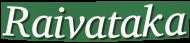
Raivataka